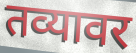
तव्यावर